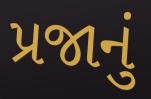
પ્રજાનું